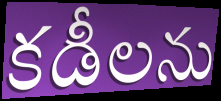
కడీలను